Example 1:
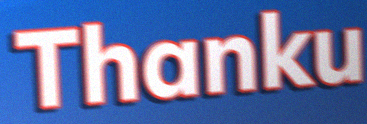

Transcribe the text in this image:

Thanku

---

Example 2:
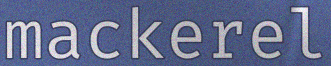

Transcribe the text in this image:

mackerel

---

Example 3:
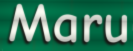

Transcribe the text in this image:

Maru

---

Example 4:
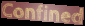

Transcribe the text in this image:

Confined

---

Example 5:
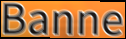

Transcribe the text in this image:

Banne